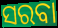
ସରବା